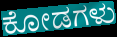
ಕೋಡಗಳು